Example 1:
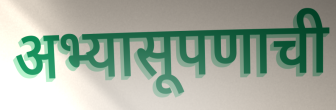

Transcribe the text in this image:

अभ्यासूपणाची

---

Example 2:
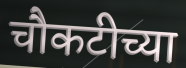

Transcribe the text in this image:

चौकटीच्या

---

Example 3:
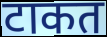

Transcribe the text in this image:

टाकत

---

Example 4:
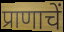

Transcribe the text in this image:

प्राणाचें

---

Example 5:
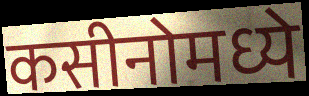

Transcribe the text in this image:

कसीनोमध्ये